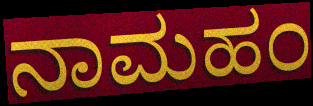
ನಾಮಹಂ